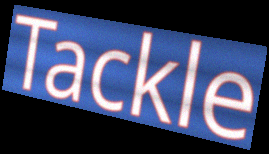
Tackle